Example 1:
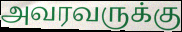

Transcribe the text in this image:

அவரவருக்கு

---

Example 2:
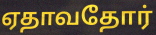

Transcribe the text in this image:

ஏதாவதோர்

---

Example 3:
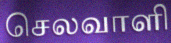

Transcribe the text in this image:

செலவாளி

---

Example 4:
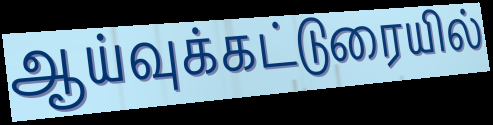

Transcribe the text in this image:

ஆய்வுக்கட்டுரையில்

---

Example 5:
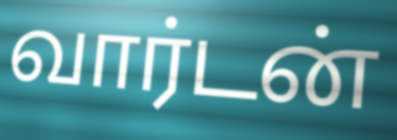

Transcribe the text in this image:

வார்டன்